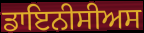
ਡਾਇਨੀਸੀਅਸ